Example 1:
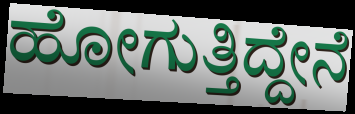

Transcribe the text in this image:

ಹೋಗುತ್ತಿದ್ದೇನೆ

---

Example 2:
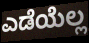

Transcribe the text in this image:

ಎಡೆಯೆಲ್ಲ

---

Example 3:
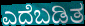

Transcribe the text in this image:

ಎದೆಬಡಿತ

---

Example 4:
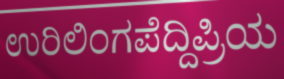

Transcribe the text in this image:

ಉರಿಲಿಂಗಪೆದ್ದಿಪ್ರಿಯ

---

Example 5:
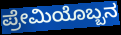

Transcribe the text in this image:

ಪ್ರೇಮಿಯೊಬ್ಬನ